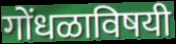
गोंधळाविषयी